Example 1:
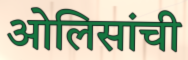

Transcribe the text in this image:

ओलिसांची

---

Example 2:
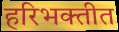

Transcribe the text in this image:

हरिभक्तीत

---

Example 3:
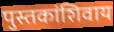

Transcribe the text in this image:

पुस्तकांशिवाय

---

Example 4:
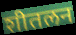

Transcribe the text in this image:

शीतलन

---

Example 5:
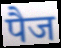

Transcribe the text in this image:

पैज